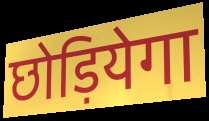
छोड़ियेगा